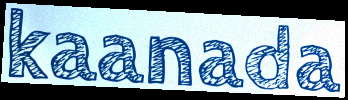
kaanada